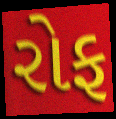
રોફ